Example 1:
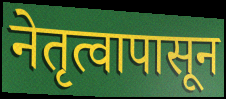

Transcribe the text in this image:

नेतृत्वापासून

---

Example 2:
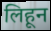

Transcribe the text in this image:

लिहून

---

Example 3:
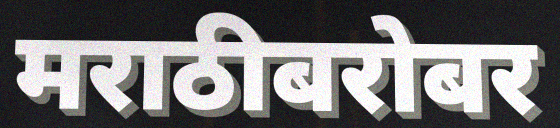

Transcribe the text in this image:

मराठीबरोबर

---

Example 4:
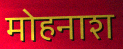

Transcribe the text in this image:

मोहनाश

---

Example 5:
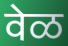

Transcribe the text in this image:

वेळ